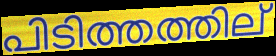
പിടിത്തത്തില്